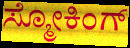
ಸ್ಮೋಕಿಂಗ್